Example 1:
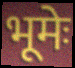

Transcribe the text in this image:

भूमेः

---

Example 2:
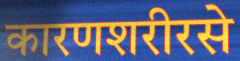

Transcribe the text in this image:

कारणशरीरसे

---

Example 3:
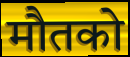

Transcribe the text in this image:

मौतको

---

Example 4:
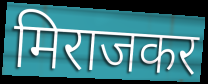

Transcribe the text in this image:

मिराजकर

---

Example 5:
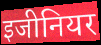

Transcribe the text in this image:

इजीनियर